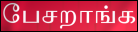
பேசறாங்க